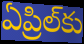
ఏప్రిల్‌కు